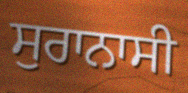
ਸੁਰਾਨਾਸੀ